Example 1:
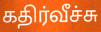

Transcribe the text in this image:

கதிர்வீச்சு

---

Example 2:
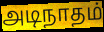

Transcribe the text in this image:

அடிநாதம்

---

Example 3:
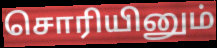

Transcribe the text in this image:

சொரியினும்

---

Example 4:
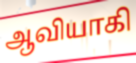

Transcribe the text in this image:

ஆவியாகி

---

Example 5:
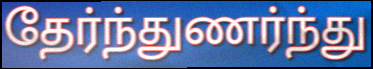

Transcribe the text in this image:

தேர்ந்துணர்ந்து